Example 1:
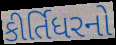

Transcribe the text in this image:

કીર્તિધરનો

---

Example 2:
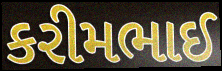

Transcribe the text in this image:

કરીમભાઈ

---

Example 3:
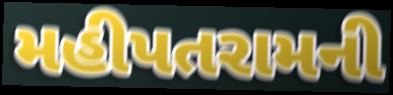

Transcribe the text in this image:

મહીપતરામની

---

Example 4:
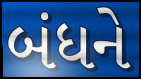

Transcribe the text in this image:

બંધને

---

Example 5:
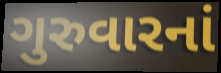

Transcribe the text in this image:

ગુરુવારનાં